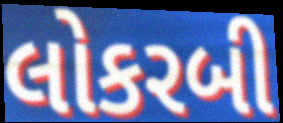
લોકરબી